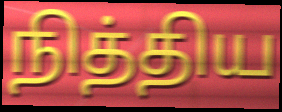
நித்திய